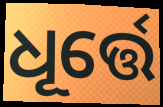
ଧୂର୍ତ୍ତେ